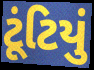
ટૂંટિયું